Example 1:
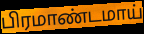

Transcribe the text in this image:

பிரமாண்டமாய்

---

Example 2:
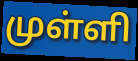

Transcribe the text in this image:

முள்ளி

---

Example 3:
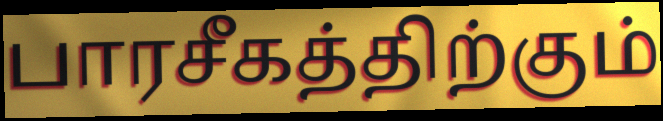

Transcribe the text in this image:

பாரசீகத்திற்கும்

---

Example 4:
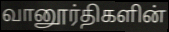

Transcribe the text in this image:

வானூர்திகளின்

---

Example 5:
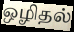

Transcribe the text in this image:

ஒழிதல்